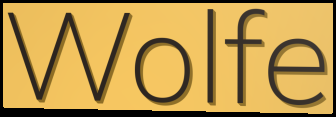
Wolfe